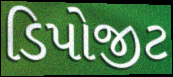
ડિપોજીટ